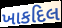
ખાકદિલ